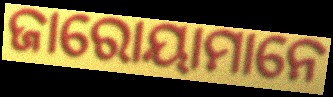
ଜାରୋୟାମାନେ